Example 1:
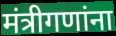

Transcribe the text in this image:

मंत्रीगणांना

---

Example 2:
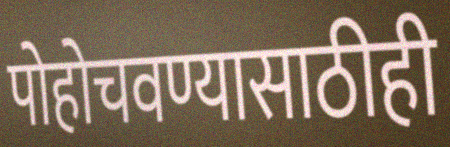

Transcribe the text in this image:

पोहोचवण्यासाठीही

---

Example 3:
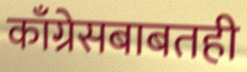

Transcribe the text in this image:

काँग्रेसबाबतही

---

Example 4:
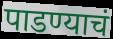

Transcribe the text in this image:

पाडण्याचं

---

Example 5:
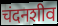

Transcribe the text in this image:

चंदनशीव